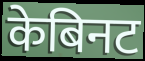
केबिनट